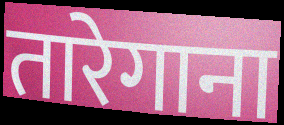
तारेगाना